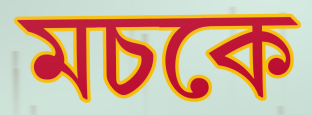
মচকে